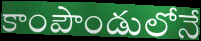
కాంపౌండులోనే